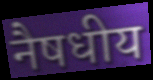
नैषधीय